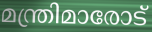
മന്ത്രിമാരോട്